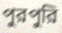
পুরপুরি